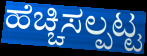
ಹೆಚ್ಚಿಸಲ್ಪಟ್ಟ